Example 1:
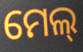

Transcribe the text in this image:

ମେଲ୍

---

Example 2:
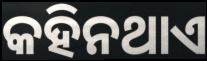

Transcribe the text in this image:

କହିନଥାଏ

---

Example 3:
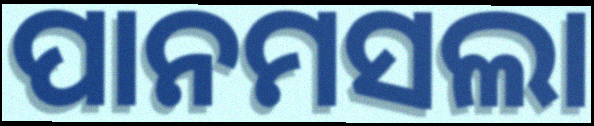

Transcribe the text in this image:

ପାନମସଲା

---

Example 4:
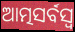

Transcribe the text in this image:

ଆତ୍ମସର୍ବସ୍ଵ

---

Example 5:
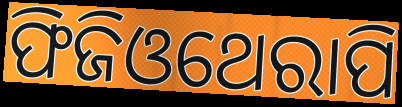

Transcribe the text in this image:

ଫିଜିଓଥେରାପି